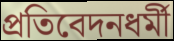
প্রতিবেদনধর্মী